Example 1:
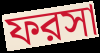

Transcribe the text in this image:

ফরসা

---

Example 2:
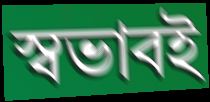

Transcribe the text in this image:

স্বভাবই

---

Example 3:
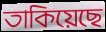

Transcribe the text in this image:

তাকিয়েছে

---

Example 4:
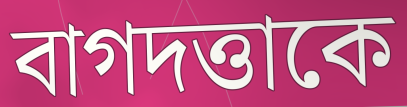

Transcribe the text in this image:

বাগদত্তাকে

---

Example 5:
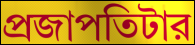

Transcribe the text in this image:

প্রজাপতিটার